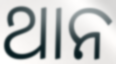
ଥାନ